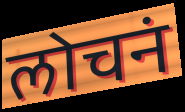
लोचनं